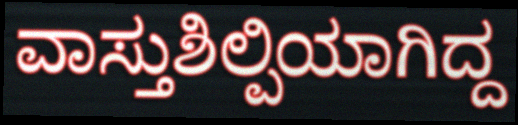
ವಾಸ್ತುಶಿಲ್ಪಿಯಾಗಿದ್ದ